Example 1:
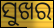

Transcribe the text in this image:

ସୁଖର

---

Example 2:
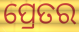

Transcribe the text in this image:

ପ୍ରେତର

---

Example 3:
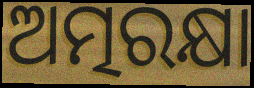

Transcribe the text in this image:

ଅତ୍ମରକ୍ଷା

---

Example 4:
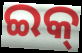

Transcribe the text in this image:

ଇକ୍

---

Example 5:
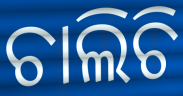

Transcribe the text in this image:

ଚାଲିଚି